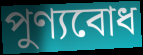
পুণ্যবোধ